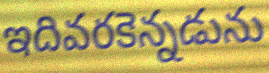
ఇదివరకెన్నడును